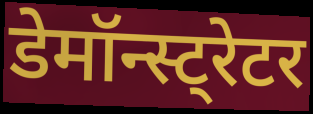
डेमॉन्स्ट्रेटर